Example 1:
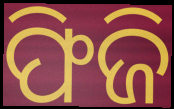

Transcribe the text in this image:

ଫିଜି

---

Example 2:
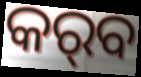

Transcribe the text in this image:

କର୍‌ବ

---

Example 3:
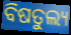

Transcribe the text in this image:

ବିଷତୁଲ୍ୟ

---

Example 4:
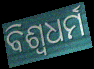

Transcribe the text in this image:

ବିଶ୍ବଧର୍ମ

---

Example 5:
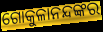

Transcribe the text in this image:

ଗୋକୁଳାନନ୍ଦଙ୍କର